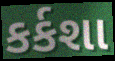
કર્કશા